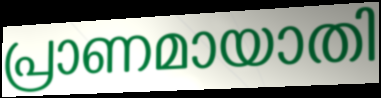
പ്രാണമായാതി